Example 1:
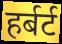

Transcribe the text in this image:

हर्बर्ट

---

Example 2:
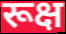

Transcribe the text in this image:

रूक्ष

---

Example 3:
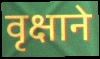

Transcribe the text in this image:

वृक्षाने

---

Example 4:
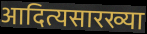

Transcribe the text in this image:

आदित्यसारख्या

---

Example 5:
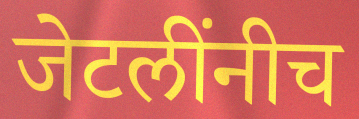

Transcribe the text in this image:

जेटलींनीच